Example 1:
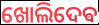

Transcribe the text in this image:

ଖୋଲିଦେଵ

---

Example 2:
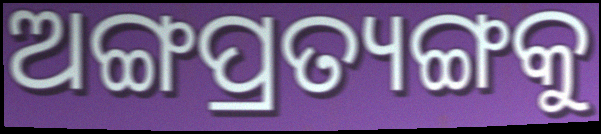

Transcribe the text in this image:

ଅଙ୍ଗପ୍ରତ୍ୟଙ୍ଗକୁ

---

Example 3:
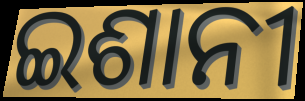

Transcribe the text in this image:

ଇଶାନୀ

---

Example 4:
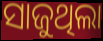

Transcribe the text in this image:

ସାଜୁଥିଲା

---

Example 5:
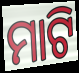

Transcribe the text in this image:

ମାଟି